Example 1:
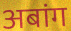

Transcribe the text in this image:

अबांग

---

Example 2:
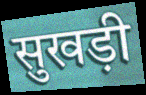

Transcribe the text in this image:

सुखड़ी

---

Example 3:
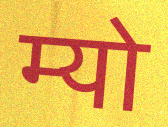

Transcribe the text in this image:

म्यो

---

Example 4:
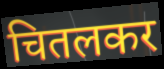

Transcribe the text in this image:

चितलकर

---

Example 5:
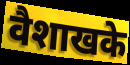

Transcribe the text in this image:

वैशाखके